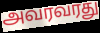
அவரவரது